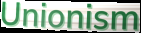
Unionism